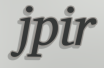
jpir